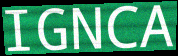
IGNCA